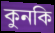
কুনকি